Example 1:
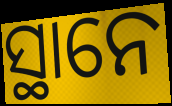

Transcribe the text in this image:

ସ୍ଥାନେ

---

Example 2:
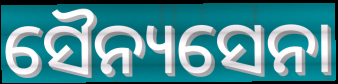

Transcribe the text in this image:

ସୈନ୍ୟସେନା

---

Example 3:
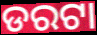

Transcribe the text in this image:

ଡରଟା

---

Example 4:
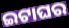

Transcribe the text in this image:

ଇଟାଘର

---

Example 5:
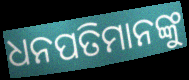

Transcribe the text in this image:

ଧନପତିମାନଙ୍କୁ